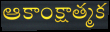
ఆకాంక్షాత్మక